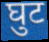
घुट